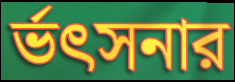
র্ভৎসনার